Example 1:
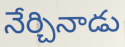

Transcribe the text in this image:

నేర్చినాడు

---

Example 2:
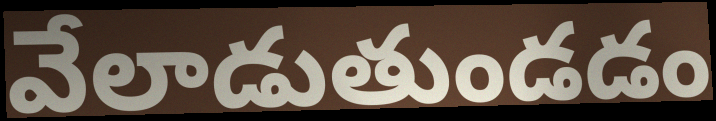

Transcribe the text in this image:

వేలాడుతుండడం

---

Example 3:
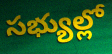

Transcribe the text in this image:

సభ్యుల్లో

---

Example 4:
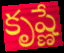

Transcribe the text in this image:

కృష్ణే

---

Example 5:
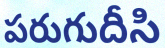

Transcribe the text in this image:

పరుగుదీసి